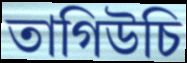
তাগিউচি